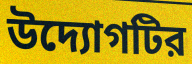
উদ্যোগটির